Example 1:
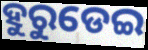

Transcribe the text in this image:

ହୁରୁଡେଇ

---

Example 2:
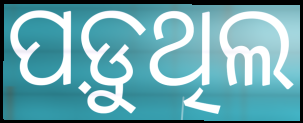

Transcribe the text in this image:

ପଡ଼ୁଥିଲ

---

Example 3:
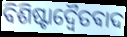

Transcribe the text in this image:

ବିଶିଷ୍ଟାଦ୍ଵୈତବାଦ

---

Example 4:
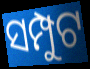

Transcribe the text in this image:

ସମ୍ପୁଟ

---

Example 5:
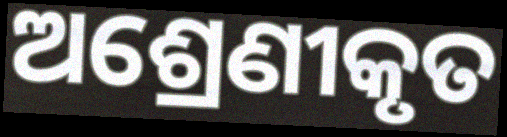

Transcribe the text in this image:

ଅଶ୍ରେଣୀକୃତ